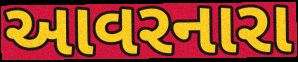
આવરનારા